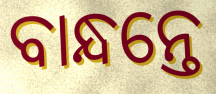
ବାନ୍ଧନ୍ତେ